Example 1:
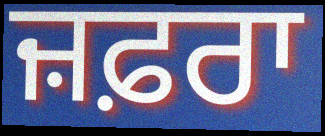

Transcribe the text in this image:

ਜ਼ਫ਼ਰਾ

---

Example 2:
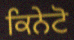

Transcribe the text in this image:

ਕਿਨੇਟੋ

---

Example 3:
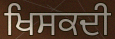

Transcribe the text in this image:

ਖਿਸਕਦੀ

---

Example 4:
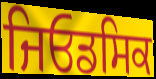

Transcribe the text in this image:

ਜਿਓਡਸਿਕ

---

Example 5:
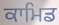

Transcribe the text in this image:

ਕਾਮਿਡ